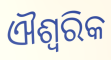
ଐଶ୍ୱରିକ